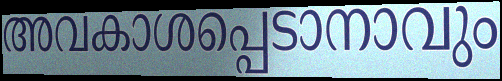
അവകാശപ്പെടാനാവും